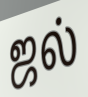
ஜல்